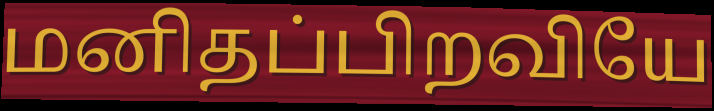
மனிதப்பிறவியே